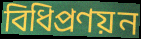
বিধিপ্রণয়ন